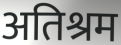
अतिश्रम